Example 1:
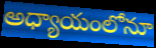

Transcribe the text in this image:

అధ్యాయంలోనూ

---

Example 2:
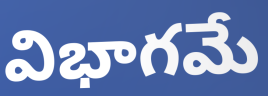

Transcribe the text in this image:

విభాగమే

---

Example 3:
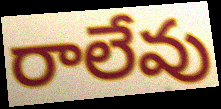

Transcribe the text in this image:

రాలేవు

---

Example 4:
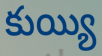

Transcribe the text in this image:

కుయ్యి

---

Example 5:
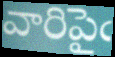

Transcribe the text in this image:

వారిపైఁ